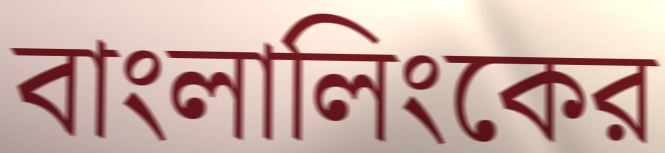
বাংলালিংকের